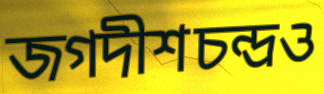
জগদীশচন্দ্রও